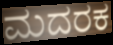
ಮದರಕ